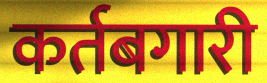
कर्तबगारी